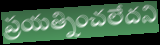
ప్రయత్నించలేదని